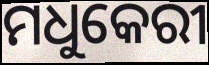
ମଧୁକେରୀ